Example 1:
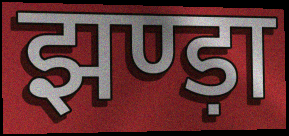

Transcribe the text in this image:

झण्ड़ा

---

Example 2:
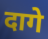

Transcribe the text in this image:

दागे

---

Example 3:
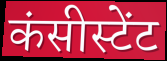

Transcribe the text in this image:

कंसीस्टेंट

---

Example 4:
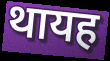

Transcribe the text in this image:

थायह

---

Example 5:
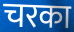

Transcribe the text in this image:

चरका